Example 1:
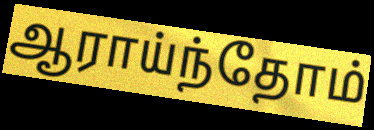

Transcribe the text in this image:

ஆராய்ந்தோம்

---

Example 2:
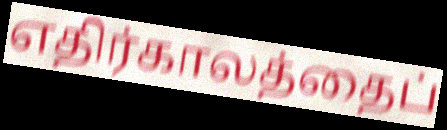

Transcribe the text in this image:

எதிர்காலத்தைப்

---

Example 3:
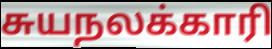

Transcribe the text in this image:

சுயநலக்காரி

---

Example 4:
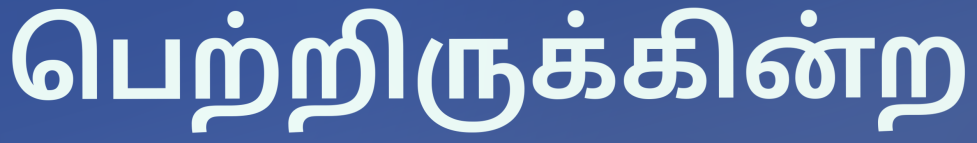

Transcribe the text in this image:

பெற்றிருக்கின்ற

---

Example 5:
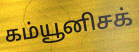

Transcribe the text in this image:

கம்யூனிசக்